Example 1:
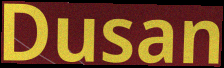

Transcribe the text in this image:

Dusan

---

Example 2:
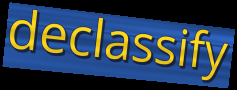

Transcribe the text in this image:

declassify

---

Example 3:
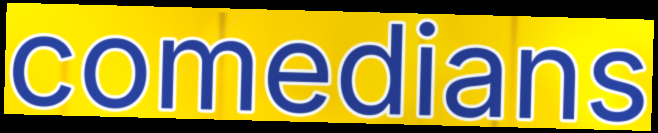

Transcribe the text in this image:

comedians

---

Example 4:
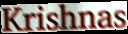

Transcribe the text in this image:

Krishnas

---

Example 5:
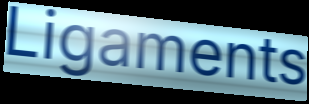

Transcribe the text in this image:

Ligaments